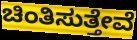
ಚಿಂತಿಸುತ್ತೇವೆ